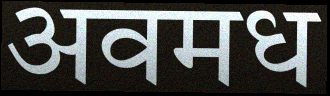
अवमध